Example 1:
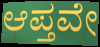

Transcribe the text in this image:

ಆಪ್ತವೇ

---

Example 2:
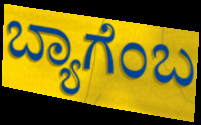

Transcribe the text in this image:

ಬ್ಯಾಗೆಂಬ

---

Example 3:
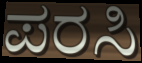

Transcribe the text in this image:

ಪರಸಿ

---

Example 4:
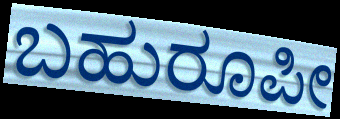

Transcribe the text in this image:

ಬಹುರೂಪೀ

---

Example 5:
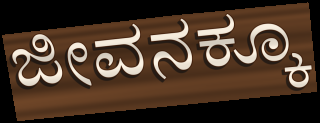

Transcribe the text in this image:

ಜೀವನಕ್ಕೂ